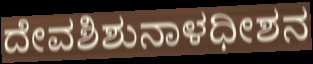
ದೇವಶಿಶುನಾಳಧೀಶನ